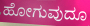
ಹೋಗುವುದೂ